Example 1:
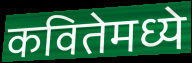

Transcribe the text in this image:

कवितेमध्ये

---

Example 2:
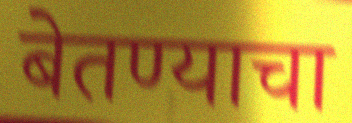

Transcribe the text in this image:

बेतण्याचा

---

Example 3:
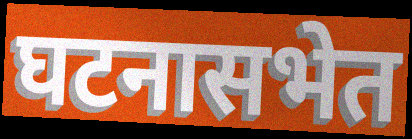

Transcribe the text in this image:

घटनासभेत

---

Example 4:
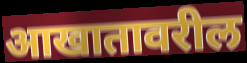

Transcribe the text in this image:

आखातावरील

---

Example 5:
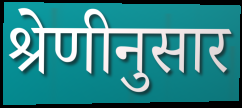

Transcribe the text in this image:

श्रेणीनुसार